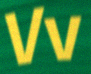
Vv